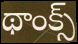
థాంక్స్